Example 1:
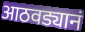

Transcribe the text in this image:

आठवड्यानं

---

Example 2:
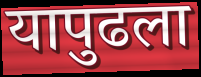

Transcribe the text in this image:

यापुढला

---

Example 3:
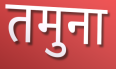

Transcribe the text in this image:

तमुना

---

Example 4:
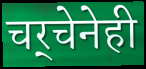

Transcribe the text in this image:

चर्चेनेही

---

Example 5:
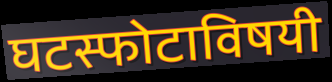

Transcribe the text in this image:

घटस्फोटाविषयी